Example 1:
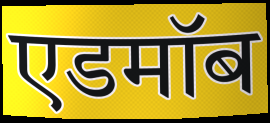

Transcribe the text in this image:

एडमॉब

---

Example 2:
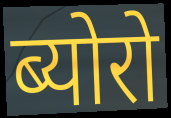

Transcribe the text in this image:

ब्योरो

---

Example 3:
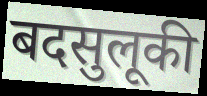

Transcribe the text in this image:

बदसुलूकी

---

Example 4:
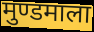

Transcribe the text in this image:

मुण्डमाला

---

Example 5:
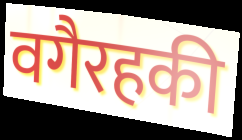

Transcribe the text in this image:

वगैरहकी